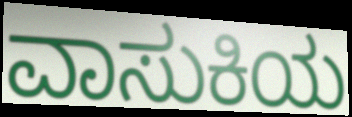
ವಾಸುಕಿಯ